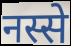
नस्से